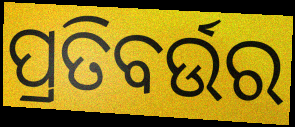
ପ୍ରତିବର୍ଉର